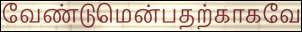
வேண்டுமென்பதற்காகவே